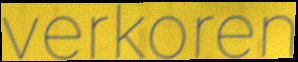
verkoren